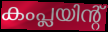
കംപ്ലയിന്റ്